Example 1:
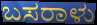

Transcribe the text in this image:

ಬಸರಾಳು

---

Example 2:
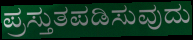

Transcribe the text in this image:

ಪ್ರಸ್ತುತಪಡಿಸುವುದು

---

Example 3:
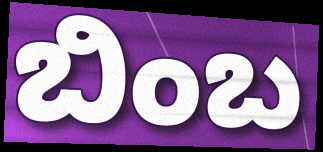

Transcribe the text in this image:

ಬಿಂಬ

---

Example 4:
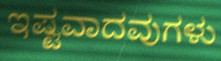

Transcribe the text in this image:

ಇಷ್ಟವಾದವುಗಳು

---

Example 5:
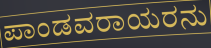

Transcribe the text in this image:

ಪಾಂಡವರಾಯರನು